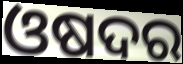
ଓଷଦର